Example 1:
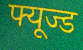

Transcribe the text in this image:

फ्यूज्ड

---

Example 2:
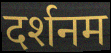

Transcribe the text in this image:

दर्शनम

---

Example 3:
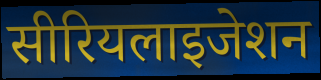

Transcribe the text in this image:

सीरियलाइजेशन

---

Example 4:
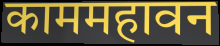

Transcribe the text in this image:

काममहावन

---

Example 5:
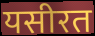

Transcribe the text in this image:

यसीरत